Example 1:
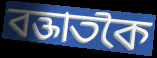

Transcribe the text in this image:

বক্তাতকৈ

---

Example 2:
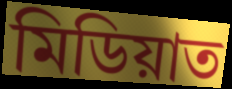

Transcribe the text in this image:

মিডিয়াত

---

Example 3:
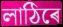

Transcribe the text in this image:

লাঠিৰে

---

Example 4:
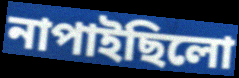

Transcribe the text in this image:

নাপাইছিলো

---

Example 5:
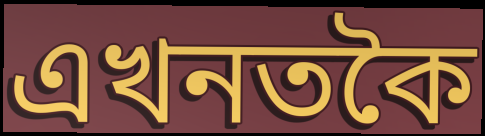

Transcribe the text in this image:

এখনতকৈ